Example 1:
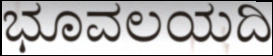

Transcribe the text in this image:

ಭೂವಲಯದಿ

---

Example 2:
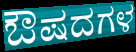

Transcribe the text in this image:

ಔಷದಗಳ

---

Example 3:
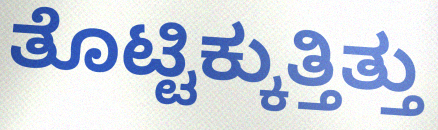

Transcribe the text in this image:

ತೊಟ್ಟಿಕ್ಕುತ್ತಿತ್ತು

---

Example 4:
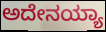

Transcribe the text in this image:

ಅದೇನಯ್ಯಾ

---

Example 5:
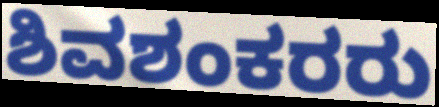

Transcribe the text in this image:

ಶಿವಶಂಕರರು